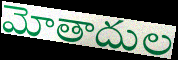
మోతాదుల